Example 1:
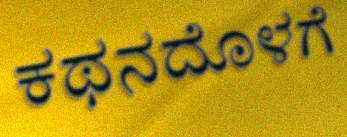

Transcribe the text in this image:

ಕಥನದೊಳಗೆ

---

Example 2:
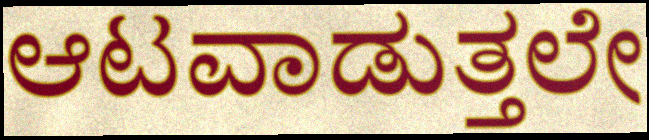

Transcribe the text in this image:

ಆಟವಾಡುತ್ತಲೇ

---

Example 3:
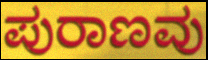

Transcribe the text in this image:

ಪುರಾಣವು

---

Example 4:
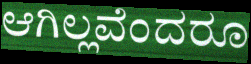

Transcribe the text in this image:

ಆಗಿಲ್ಲವೆಂದರೂ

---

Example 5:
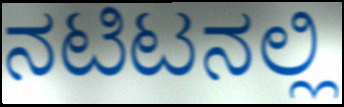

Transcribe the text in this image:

ನಟಿಟನಲ್ಲಿ